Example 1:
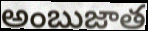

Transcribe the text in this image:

అంబుజాత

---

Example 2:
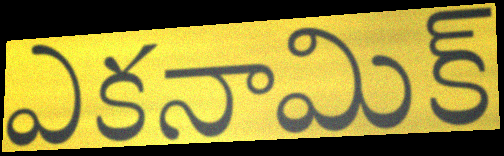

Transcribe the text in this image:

ఎకనామిక్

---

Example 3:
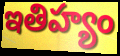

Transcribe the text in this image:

ఇతిహ్యం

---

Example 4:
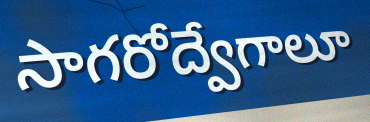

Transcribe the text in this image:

సాగరోద్వేగాలూ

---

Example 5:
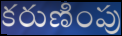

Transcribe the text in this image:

కరుణింపు